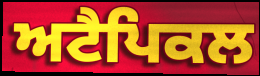
ਅਟੈਪਿਕਲ